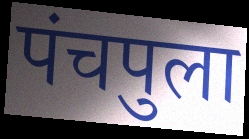
पंचपुला